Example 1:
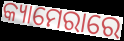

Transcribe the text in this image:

କ୍ୟାମେରାରେ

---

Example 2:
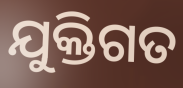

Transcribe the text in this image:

ଯୁକ୍ତିଗତ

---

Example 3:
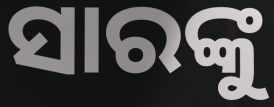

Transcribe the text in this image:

ସାରଙ୍କୁ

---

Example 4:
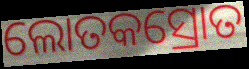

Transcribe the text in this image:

ଲୋତକସ୍ରୋତ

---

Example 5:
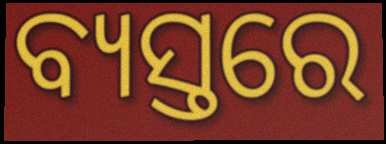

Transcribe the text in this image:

ବ୍ୟସ୍ତରେ